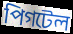
পিগটেল